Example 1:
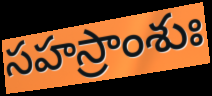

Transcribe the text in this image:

సహస్రాంశుః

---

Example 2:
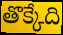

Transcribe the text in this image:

తొక్కేది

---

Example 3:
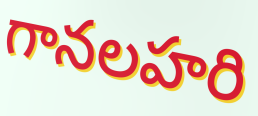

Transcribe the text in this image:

గానలహరి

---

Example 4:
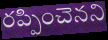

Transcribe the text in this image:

రప్పించెనని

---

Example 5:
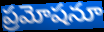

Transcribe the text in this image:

ప్రమోషనూ